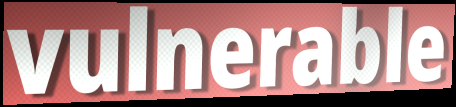
vulnerable